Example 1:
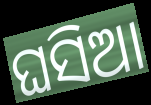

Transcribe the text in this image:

ଘସିଆ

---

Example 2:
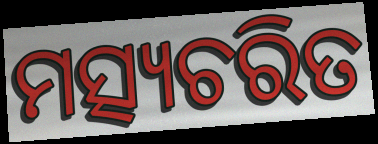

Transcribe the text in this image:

ମତ୍ସ୍ୟଚରିତ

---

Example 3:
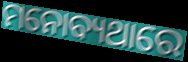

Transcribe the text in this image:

ମନୋବ୍ୟଥାରେ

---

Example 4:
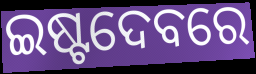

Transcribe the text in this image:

ଇଷ୍ଟଦେବରେ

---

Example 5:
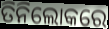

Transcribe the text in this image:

ତିନିଲୋକରେ